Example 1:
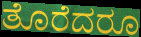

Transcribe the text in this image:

ತೊರೆದರೂ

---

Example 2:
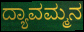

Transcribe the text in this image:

ದ್ಯಾವಮ್ಮನ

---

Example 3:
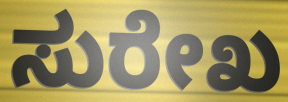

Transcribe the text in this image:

ಸುರೇಖ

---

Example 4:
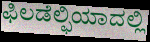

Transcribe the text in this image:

ಫಿಲಡೆಲ್ಫಿಯಾದಲ್ಲಿ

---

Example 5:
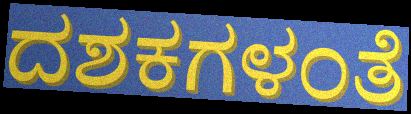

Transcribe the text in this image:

ದಶಕಗಳಂತೆ